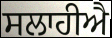
ਸਲਾਹੀਐ